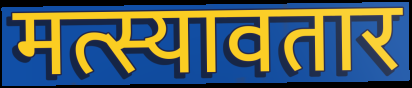
मत्स्यावतार